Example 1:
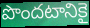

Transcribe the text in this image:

పొందటానికై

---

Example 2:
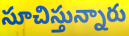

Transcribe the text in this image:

సూచిస్తున్నారు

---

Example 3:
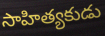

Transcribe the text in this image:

సాహిత్యకుడు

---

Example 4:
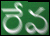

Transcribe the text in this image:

రేవ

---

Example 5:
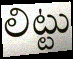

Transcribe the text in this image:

లిట్టు